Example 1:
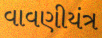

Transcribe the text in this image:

વાવણીયંત્ર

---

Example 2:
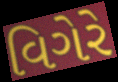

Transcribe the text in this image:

વિગેરે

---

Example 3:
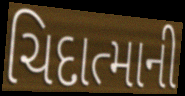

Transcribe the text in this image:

ચિદાત્માની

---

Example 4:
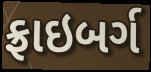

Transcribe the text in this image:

ફ્રાઇબર્ગ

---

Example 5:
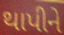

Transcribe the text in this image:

થાપીને